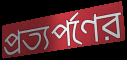
প্রত্যর্পণের